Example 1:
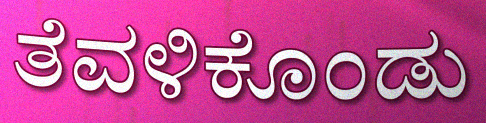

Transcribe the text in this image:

ತೆವಳಿಕೊಂಡು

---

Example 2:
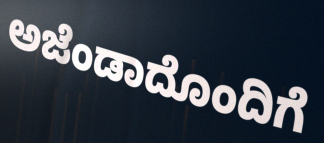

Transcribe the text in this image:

ಅಜೆಂಡಾದೊಂದಿಗೆ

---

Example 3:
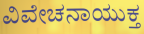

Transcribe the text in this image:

ವಿವೇಚನಾಯುಕ್ತ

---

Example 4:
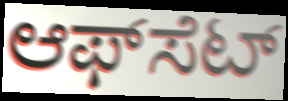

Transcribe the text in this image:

ಆಫ್‍ಸೆಟ್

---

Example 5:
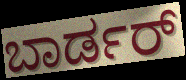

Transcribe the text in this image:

ಬಾರ್ಡರ್